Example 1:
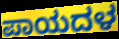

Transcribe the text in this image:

ಪಾಯದಳ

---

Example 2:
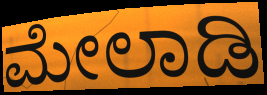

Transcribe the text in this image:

ಮೇಲಾಡಿ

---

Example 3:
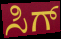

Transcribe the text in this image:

ಸಿಗ್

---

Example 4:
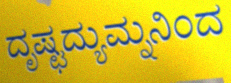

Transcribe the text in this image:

ದೃಷ್ಟದ್ಯುಮ್ನನಿಂದ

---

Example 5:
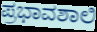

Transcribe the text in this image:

ಪ್ರಭಾವಶಾಲಿ